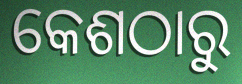
କେଶଠାରୁ